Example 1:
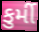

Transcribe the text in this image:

કુર્મી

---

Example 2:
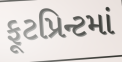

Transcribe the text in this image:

ફૂટપ્રિન્ટમાં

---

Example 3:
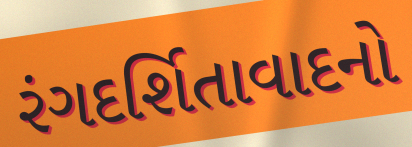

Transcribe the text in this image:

રંગદર્શિતાવાદનો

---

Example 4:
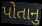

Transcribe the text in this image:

પોતાનુ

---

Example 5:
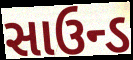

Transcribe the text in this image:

સાઉન્ડ